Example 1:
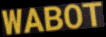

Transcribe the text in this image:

WABOT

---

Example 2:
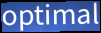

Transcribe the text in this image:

optimal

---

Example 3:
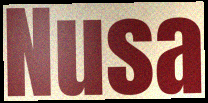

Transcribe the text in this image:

Nusa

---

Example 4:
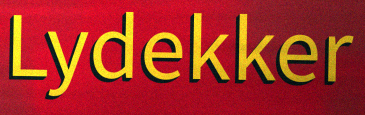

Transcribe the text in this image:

Lydekker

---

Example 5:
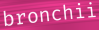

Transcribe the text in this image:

bronchii